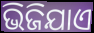
ଭିଜିଯାଏ